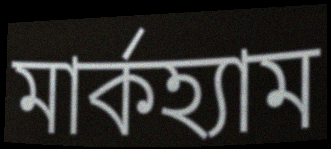
মার্কহ্যাম